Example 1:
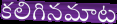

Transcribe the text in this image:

కలిగినమాట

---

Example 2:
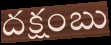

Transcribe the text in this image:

దక్షంబు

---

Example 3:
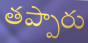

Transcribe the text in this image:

తప్పారు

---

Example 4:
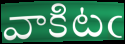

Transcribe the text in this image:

వాకిటఁ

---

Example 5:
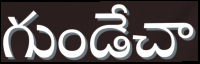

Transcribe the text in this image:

గుండేచా